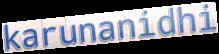
karunanidhi